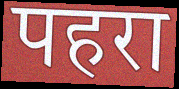
पहरा